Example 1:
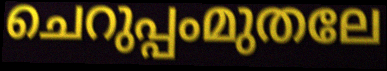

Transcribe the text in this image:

ചെറുപ്പംമുതലേ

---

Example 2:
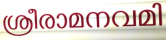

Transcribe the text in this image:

ശ്രീരാമനവമി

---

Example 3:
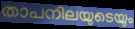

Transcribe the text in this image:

താപനിലയുടെയും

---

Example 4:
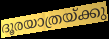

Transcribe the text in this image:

ദൂരയാത്രയ്ക്കു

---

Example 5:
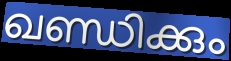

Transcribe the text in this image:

ഖണ്ഡിക്കും